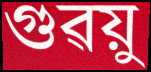
গুৱয়ু